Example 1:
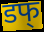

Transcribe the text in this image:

डफ्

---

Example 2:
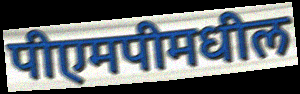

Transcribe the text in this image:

पीएमपीमधील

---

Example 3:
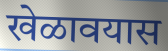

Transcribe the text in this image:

खेळावयास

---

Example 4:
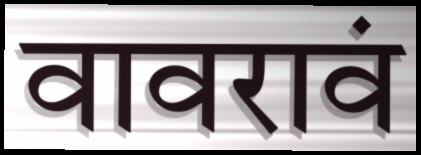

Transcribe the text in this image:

वावरावं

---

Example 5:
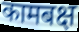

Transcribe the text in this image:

कामबक्ष